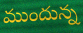
ముందున్న